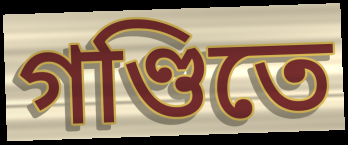
গণ্ডিতে